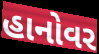
હાનોવર